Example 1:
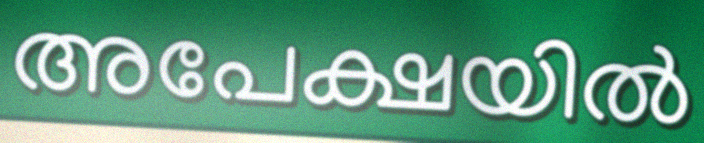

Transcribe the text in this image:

അപേക്ഷയിൽ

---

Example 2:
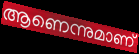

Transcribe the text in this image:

ആണെന്നുമാണ്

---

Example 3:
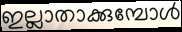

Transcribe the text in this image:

ഇല്ലാതാക്കുമ്പോൾ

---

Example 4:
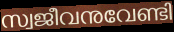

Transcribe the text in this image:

സ്വജീവനുവേണ്ടി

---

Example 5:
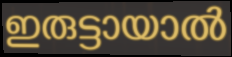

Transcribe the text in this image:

ഇരുട്ടായാൽ